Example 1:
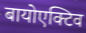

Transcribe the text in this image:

बायोएक्टिव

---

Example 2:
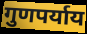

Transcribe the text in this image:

गुणपर्याय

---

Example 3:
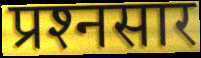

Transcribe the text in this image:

प्रश्‍नसार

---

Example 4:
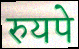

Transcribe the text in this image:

रुयपे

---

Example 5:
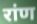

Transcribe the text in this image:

रांण